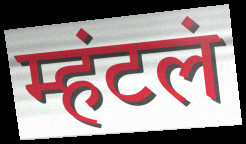
म्हंटलं